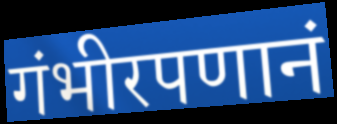
गंभीरपणानं